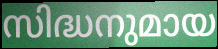
സിദ്ധനുമായ